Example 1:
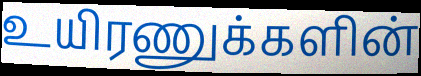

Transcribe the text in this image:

உயிரணுக்களின்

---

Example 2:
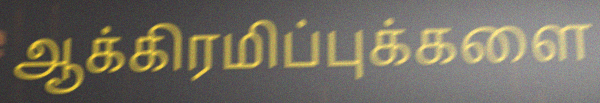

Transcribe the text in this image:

ஆக்கிரமிப்புக்களை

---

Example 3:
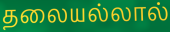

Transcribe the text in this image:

தலையல்லால்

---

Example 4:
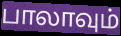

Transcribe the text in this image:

பாலாவும்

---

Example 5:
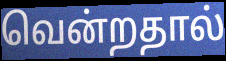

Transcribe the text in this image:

வென்றதால்